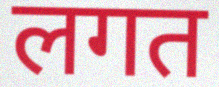
लगत